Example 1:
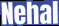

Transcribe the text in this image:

Nehal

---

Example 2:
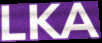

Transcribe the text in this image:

LKA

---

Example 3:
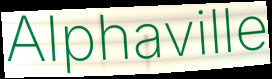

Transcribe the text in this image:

Alphaville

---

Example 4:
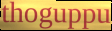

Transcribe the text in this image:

thoguppu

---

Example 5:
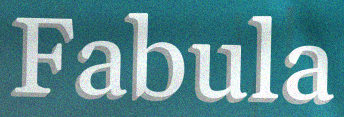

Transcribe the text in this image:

Fabula